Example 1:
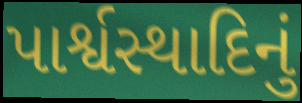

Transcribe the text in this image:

પાર્શ્વસ્થાદિનું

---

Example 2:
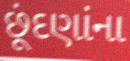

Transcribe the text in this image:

છૂંદણાંના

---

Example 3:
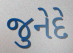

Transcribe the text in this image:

જુનેદે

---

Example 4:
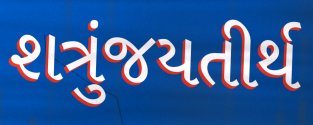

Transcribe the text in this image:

શત્રુંજયતીર્થ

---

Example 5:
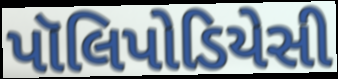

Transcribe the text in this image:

પૉલિપોડિયેસી